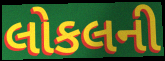
લોકલની